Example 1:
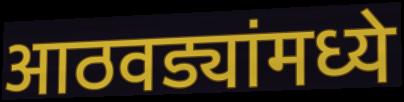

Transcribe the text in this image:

आठवड्यांमध्ये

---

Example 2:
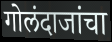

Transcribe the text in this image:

गोलंदाजांचा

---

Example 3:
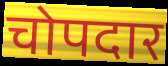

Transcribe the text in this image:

चोपदार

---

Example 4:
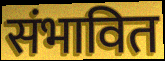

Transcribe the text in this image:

संभावित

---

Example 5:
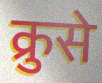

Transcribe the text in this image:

क्रुसे